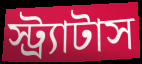
স্ট্র্যাটাস